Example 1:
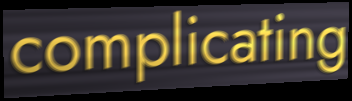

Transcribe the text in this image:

complicating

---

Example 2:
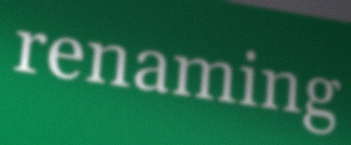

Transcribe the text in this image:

renaming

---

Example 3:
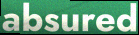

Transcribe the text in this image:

absured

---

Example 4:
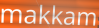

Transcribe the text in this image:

makkam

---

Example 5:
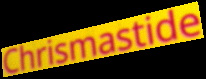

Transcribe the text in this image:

Chrismastide